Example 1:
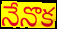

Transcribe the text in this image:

నేనొక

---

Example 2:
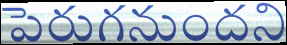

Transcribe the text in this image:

పెరుగనుందని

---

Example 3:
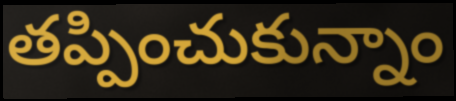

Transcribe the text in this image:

తప్పించుకున్నాం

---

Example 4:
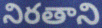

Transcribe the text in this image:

నిరతాని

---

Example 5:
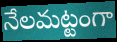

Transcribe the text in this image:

నేలమట్టంగా